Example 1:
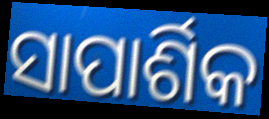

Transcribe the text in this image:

ସାପାର୍ଶିକ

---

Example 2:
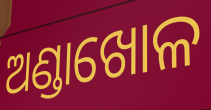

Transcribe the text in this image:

ଅଣ୍ଡାଖୋଳ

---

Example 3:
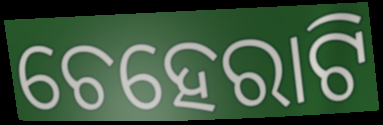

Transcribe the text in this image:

ଚେହେରାଟି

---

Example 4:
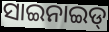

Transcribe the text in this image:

ସାଇନାଇଡ୍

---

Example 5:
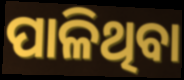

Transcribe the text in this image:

ପାଳିଥିବା